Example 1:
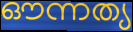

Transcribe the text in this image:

ഔന്നത്യ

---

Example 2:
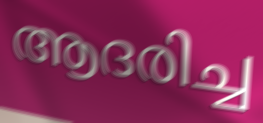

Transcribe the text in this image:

ആദരിച്ച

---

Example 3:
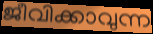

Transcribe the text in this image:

ജീവിക്കാവുന്ന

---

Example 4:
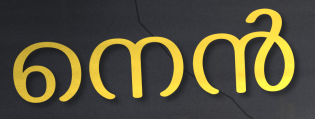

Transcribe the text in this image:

നെൻ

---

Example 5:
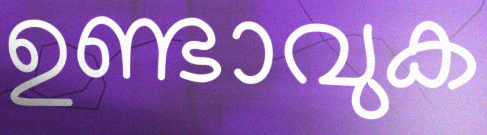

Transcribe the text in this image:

ഉണ്ടാവുക